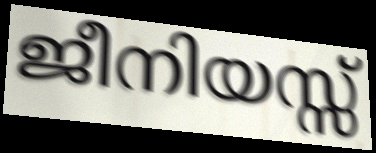
ജീനിയസ്സ്